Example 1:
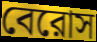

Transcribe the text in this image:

বেরোস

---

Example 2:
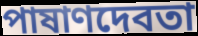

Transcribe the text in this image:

পাষাণদেবতা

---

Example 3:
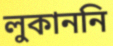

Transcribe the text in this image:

লুকাননি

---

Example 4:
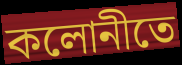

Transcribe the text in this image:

কলোনীতে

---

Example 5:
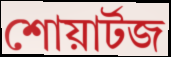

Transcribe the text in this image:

শোয়ার্টজ